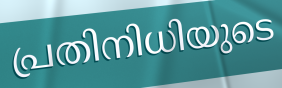
പ്രതിനിധിയുടെ